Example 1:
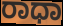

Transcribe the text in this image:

ರಾಧಾ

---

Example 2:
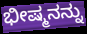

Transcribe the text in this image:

ಭೀಷ್ಮನನ್ನು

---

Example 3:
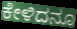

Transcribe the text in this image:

ಕೇಳಿದನೂ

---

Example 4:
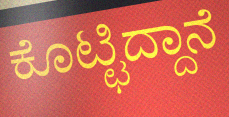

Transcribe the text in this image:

ಕೊಟ್ಟಿದ್ದಾನೆ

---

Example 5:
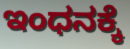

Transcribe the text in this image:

ಇಂಧನಕ್ಕೆ